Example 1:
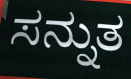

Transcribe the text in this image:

ಸನ್ನುತ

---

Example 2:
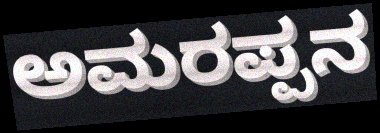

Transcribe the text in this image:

ಅಮರಪ್ಪನ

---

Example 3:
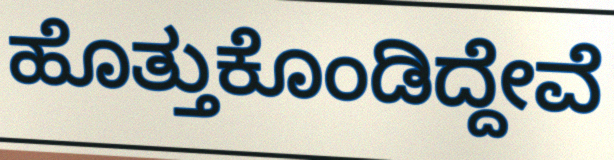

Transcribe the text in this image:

ಹೊತ್ತುಕೊಂಡಿದ್ದೇವೆ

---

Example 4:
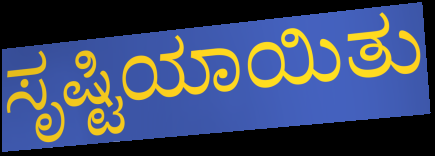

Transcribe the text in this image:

ಸೃಷ್ಟಿಯಾಯಿತು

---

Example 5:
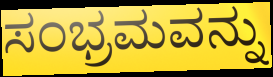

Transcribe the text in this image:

ಸಂಭ್ರಮವನ್ನು